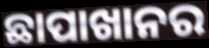
ଛାପାଖାନର